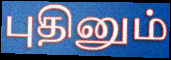
புதினும்